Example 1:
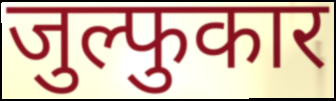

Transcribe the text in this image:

जुल्फुकार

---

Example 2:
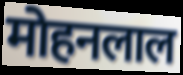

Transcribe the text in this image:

मोहनलाल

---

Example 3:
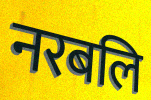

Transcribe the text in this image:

नरबलि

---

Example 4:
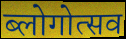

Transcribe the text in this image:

ब्लोगोत्सव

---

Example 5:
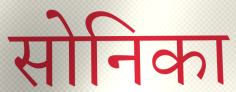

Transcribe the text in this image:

सोनिका